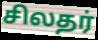
சிலதர்